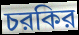
চরকির